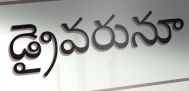
డ్రైవరునూ